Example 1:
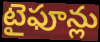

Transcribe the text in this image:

టైఫూన్లు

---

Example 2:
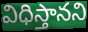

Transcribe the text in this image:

విధిస్తానని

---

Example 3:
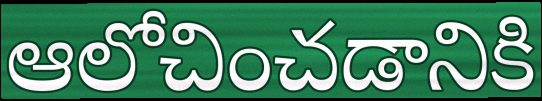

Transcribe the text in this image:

ఆలోచించడానికి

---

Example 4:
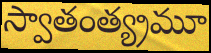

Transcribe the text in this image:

స్వాతంత్య్రమూ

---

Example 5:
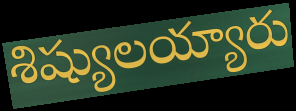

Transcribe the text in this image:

శిష్యులయ్యారు